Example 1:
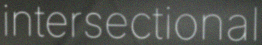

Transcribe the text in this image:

intersectional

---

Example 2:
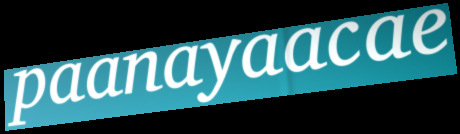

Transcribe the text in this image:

paanayaacae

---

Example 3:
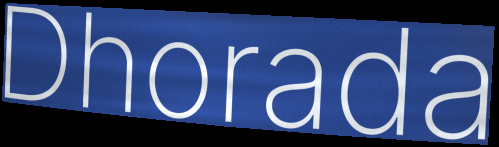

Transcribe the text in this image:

Dhorada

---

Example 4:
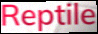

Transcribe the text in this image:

Reptile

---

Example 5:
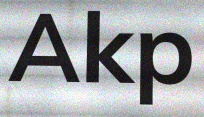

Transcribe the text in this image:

Akp